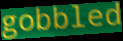
gobbled